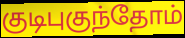
குடிபுகுந்தோம்